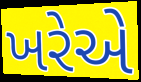
ખરેએ